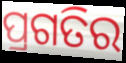
ପ୍ରଗତିର